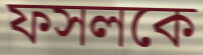
ফসলকে